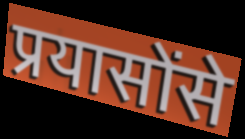
प्रयासोंसे